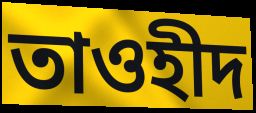
তাওহীদ